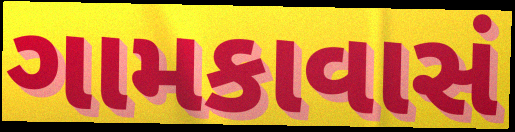
ગામકાવાસં